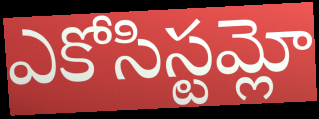
ఎకోసిస్టమ్లో